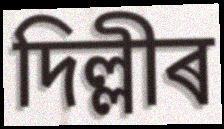
দিল্লীৰ